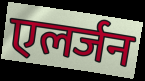
एलर्जन